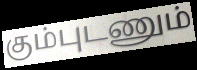
கும்புடணும்